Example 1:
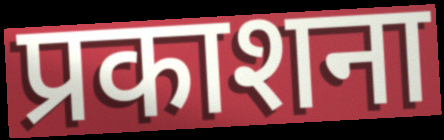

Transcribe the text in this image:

प्रकाशना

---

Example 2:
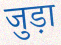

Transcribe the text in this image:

जुड़ा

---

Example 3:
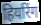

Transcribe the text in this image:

हियरिंग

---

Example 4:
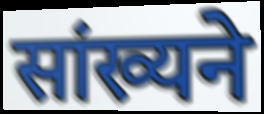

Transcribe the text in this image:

सांख्यने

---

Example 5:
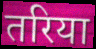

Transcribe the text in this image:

तरिया